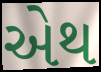
એથ